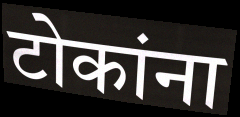
टोकांना